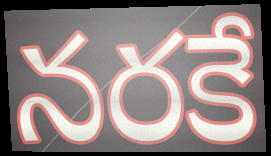
నరకే